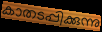
കാതടപ്പിക്കുന്നു